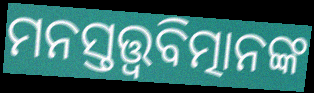
ମନସ୍ତତ୍ତ୍ବବିତ୍ମାନଙ୍କ